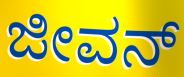
ಜೀವನ್